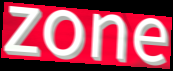
zone